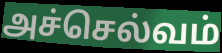
அச்செல்வம்